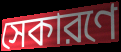
সেকারণে